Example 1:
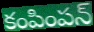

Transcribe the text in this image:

కంపింపన్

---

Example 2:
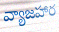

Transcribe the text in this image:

వ్యాజహార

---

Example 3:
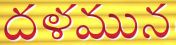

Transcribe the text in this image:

దళమున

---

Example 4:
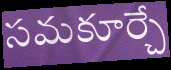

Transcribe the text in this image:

సమకూర్చే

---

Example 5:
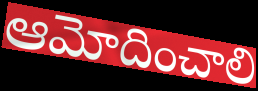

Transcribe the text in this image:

ఆమోదించాలి